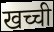
खच्ची